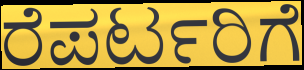
ರೆಪರ್ಟರಿಗೆ